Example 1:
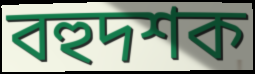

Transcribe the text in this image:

বহুদশক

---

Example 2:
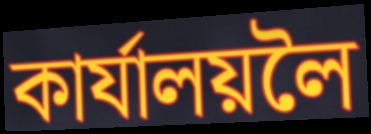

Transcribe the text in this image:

কাৰ্যালয়লৈ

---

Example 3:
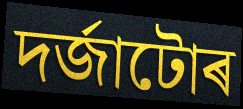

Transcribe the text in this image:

দৰ্জাটোৰ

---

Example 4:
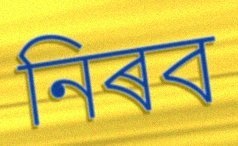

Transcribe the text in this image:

নিৰব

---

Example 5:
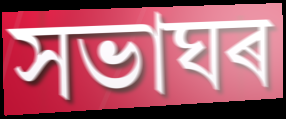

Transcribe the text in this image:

সভাঘৰ